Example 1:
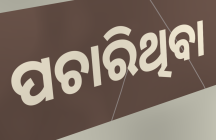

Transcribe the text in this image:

ପଚାରିଥିବା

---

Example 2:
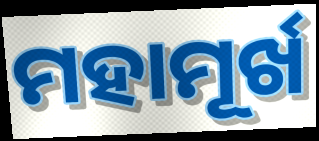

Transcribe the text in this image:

ମହାମୂର୍ଖ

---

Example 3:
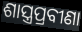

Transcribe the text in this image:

ଶାସ୍ତ୍ରପ୍ରବୀଣା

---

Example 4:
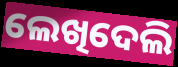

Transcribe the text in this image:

ଲେଖିଦେଲି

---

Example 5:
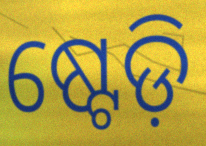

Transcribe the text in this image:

ଷ୍ଟେଡ଼ି